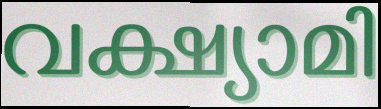
വക്ഷ്യാമി